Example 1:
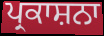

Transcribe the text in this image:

ਪ੍ਰਕਾਸ਼ਨਾ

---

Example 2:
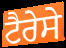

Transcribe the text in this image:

ਟੈਰੇਸੇ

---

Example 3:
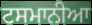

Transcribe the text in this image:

ਟਸਮਾਨੀਆ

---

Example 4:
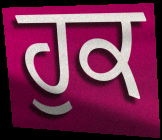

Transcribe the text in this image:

ਹੁਕ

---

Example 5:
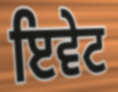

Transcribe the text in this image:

ਇਵੇਟ